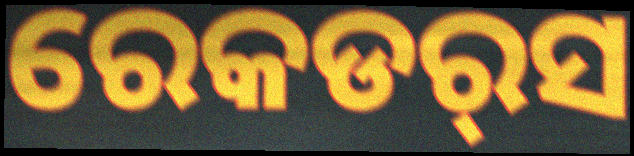
ରେକଡର୍‌ସ